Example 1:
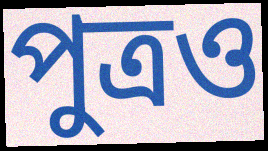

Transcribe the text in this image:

পুত্রও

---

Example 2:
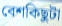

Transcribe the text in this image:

বেশকিছুটা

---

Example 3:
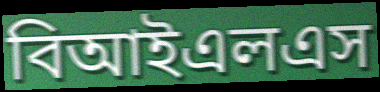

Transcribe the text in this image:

বিআইএলএস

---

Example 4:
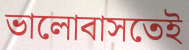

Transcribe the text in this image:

ভালোবাসতেই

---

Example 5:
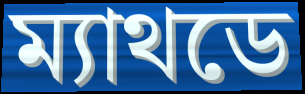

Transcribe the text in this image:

ম্যাথডে